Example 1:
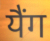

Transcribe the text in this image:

यैंग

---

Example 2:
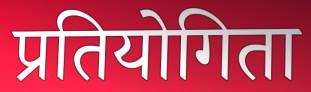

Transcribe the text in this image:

प्रतियोगिता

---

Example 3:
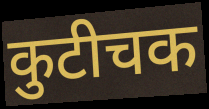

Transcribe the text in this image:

कुटीचक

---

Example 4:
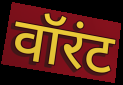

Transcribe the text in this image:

वॉरंट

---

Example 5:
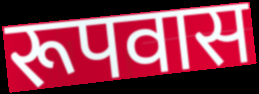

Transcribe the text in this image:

रूपवास